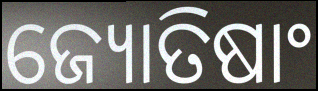
ଜ୍ୟୋତିଷାଂ